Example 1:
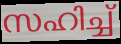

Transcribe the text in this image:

സഹിച്ച്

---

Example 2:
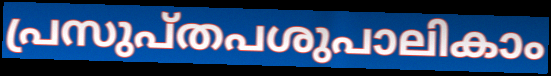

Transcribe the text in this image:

പ്രസുപ്തപശുപാലികാം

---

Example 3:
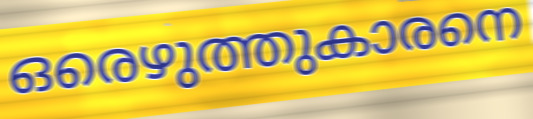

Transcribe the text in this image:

ഒരെഴുത്തുകാരനെ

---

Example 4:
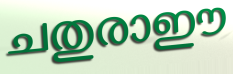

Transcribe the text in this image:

ചതുരാഈ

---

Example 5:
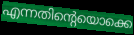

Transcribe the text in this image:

എന്നതിന്റെയൊക്കെ